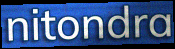
nitondra